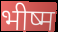
भीष्म